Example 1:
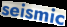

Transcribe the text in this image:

seismic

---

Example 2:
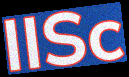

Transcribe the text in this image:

IISc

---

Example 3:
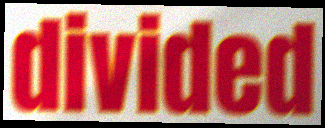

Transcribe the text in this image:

divided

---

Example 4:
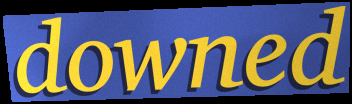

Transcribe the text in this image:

downed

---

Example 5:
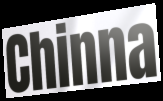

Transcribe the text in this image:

Chinna